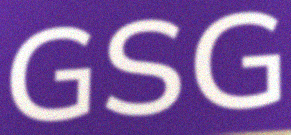
GSG